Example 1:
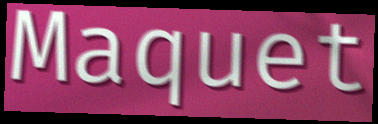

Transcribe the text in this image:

Maquet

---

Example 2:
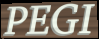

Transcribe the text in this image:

PEGI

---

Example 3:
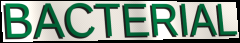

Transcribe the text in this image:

BACTERIAL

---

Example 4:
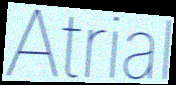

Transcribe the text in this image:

Atrial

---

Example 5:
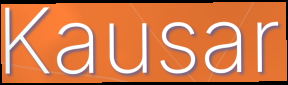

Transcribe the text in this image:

Kausar